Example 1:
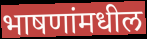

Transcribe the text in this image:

भाषणांमधील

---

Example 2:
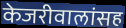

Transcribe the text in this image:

केजरीवालांसह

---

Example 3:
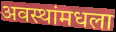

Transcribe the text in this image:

अवस्थांमधला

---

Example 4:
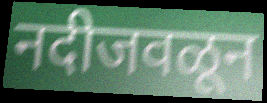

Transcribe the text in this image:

नदीजवळून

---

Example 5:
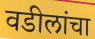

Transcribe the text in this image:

वडीलांचा